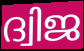
ദ്വിജ